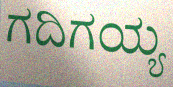
ಗದಿಗಯ್ಯ